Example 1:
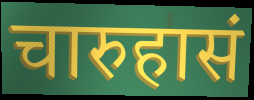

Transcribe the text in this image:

चारुहासं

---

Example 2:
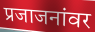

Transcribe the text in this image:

प्रजाजनांवर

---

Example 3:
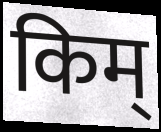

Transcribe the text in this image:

किम्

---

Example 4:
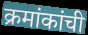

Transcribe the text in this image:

क्रमांकांची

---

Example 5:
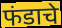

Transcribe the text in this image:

फंडाचे